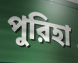
পুরিহা